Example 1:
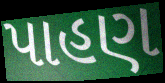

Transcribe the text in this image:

પાહણ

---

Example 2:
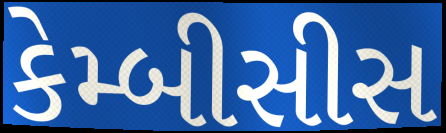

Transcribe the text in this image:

કેમ્બીસીસ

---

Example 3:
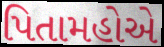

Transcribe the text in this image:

પિતામહોએ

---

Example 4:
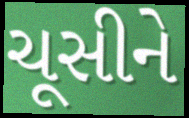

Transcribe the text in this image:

ચૂસીને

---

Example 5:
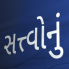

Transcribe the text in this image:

સત્ત્વોનું